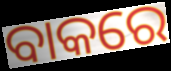
ବାକରେ